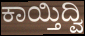
ಕಾಯ್ತಿದ್ವಿ